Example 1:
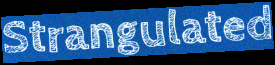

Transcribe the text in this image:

Strangulated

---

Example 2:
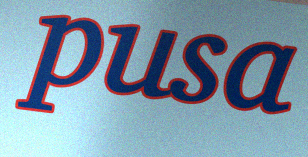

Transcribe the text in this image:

pusa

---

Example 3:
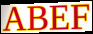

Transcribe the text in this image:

ABEF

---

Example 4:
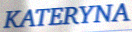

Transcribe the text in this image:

KATERYNA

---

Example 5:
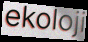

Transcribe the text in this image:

ekoloji